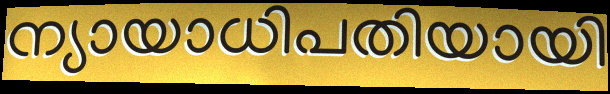
ന്യായാധിപതിയായി